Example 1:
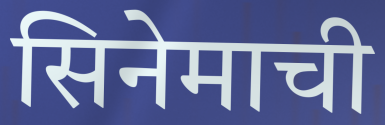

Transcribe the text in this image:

सिनेमाची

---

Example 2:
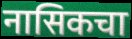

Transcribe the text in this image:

नासिकचा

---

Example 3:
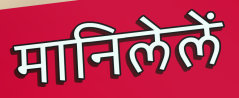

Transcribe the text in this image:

मानिलेलें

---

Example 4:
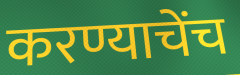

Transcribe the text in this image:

करण्याचेंच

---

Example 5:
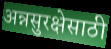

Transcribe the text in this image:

अन्नसुरक्षेसाठी